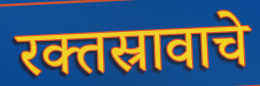
रक्तस्रावाचे